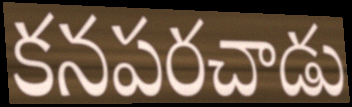
కనపరచాడు